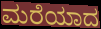
ಮರೆಯಾದ